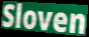
Sloven